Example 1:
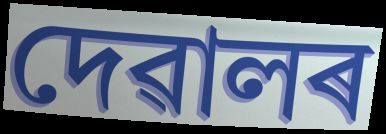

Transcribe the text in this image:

দেৱালৰ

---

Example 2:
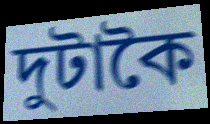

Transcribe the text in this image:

দুটাকৈ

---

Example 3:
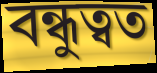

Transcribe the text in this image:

বন্ধুত্বত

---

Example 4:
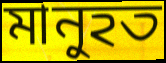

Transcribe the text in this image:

মানুহত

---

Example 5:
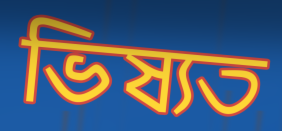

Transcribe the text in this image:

ভিষ্যত